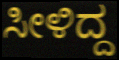
ಸೀಳಿದ್ದ